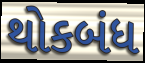
થોકબંધ